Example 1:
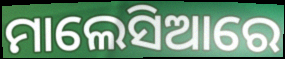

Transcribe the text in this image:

ମାଲେସିଆରେ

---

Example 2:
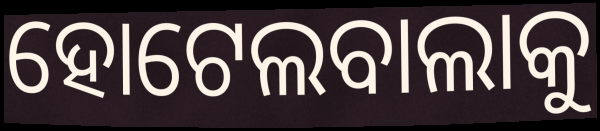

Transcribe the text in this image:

ହୋଟେଲବାଲାକୁ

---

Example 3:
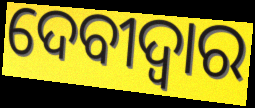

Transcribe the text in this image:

ଦେବୀଦ୍ବାର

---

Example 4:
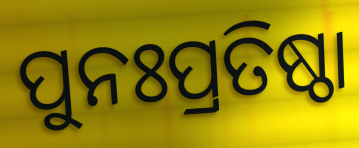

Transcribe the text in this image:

ପୁନଃପ୍ରତିଷ୍ଠା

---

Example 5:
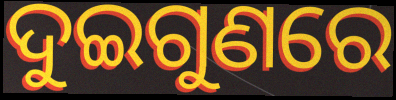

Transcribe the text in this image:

ଦୁଇଗୁଣରେ